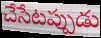
చేసేటప్పుడు